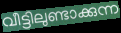
വീട്ടിലുണ്ടാക്കുന്ന